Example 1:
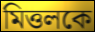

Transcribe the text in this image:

মিত্তলকে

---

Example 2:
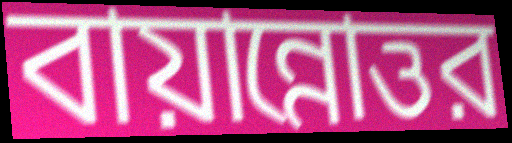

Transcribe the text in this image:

বায়ান্নোত্তর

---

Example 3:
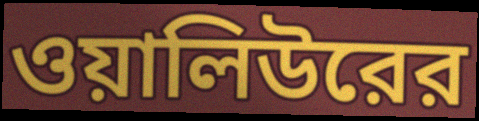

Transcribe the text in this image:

ওয়ালিউরের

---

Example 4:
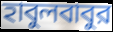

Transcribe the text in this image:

হাবুলবাবুর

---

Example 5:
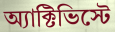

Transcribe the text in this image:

অ্যাক্টিভিস্টে